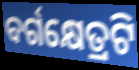
ବର୍ଗକ୍ଷେତ୍ରଟି